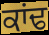
ਕਾਂਢ